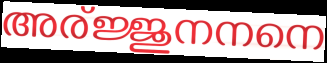
അര്ജ്ജുനനനെ